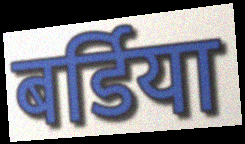
बर्डिया